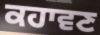
ਕਹਾਵਣ